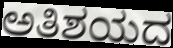
ಅತಿಶಯದ